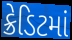
ક્રેડિટમાં